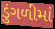
ડુંગળીમાં